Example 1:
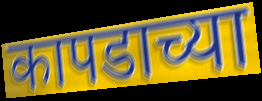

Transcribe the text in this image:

कापडाच्या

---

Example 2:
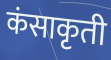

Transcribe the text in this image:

कंसाकृती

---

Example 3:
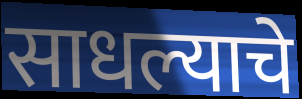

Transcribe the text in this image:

साधल्याचे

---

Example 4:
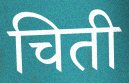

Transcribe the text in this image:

चिती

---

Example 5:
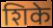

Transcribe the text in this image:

शिके